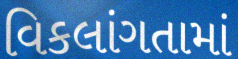
વિકલાંગતામાં